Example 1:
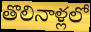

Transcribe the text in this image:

తొలినాళ్లలో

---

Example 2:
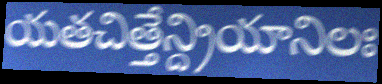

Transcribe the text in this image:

యతచిత్తేన్ద్రియానిలః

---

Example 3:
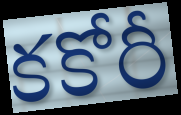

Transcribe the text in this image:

కకోరీ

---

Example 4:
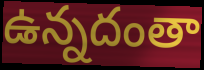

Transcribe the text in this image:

ఉన్నదంతా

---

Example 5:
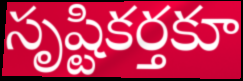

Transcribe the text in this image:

సృష్టికర్తకూ